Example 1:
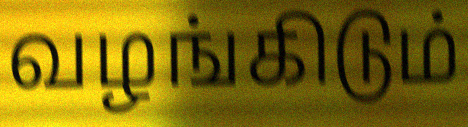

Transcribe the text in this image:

வழங்கிடும்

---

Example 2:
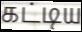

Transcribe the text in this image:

கட்டிய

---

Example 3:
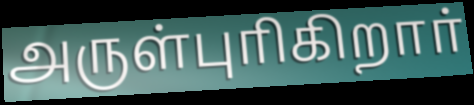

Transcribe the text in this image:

அருள்புரிகிறார்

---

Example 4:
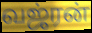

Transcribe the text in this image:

வஜ்ரன்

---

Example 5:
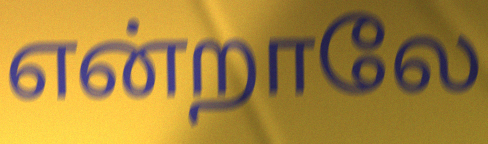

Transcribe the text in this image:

என்றாலே